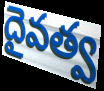
దైవత్వ